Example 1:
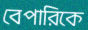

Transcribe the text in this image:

বেপারিকে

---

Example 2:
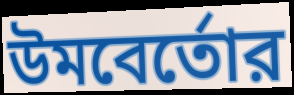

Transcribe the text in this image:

উমবের্তোর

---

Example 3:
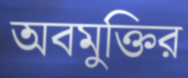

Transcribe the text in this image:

অবমুক্তির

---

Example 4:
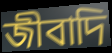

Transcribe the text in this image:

জীবাদি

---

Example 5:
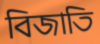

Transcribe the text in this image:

বিজাতি